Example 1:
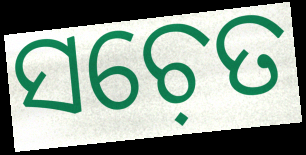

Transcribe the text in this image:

ସଚ଼େତ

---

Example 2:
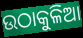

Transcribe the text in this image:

ଉଠାକୁଳିଆ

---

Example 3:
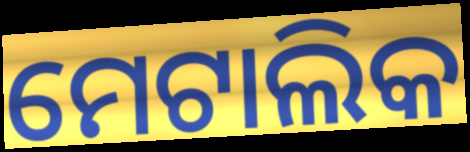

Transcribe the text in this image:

ମେଟାଲିକ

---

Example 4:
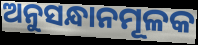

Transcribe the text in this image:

ଅନୁସନ୍ଧାନମୂଳକ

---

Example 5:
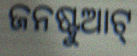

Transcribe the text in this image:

ଜନଷ୍ଟୁଆଟ୍